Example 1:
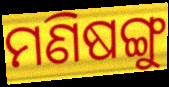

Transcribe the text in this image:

ମଣିଷଙ୍ଗୁ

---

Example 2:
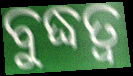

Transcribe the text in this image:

ବୁଦ୍ଧତ୍ଵ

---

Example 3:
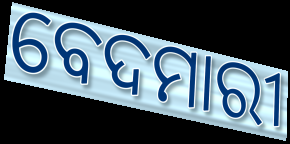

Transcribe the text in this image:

ବେଦମାରୀ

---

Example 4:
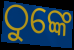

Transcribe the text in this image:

ଠୁଙ୍କେ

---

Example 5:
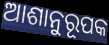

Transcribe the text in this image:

ଆଶାନୁରୂପକ